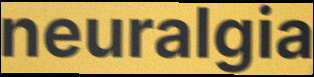
neuralgia